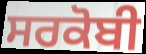
ਸਰਕੋਬੀ